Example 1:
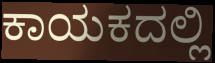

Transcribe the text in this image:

ಕಾಯಕದಲ್ಲಿ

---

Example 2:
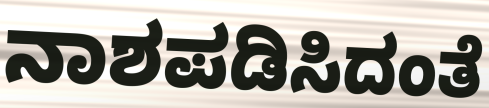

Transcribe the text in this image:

ನಾಶಪಡಿಸಿದಂತೆ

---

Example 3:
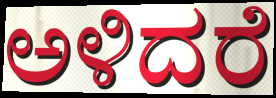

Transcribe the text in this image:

ಅಳಿದರೆ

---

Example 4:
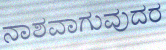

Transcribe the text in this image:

ನಾಶವಾಗುವುದರ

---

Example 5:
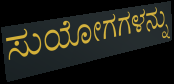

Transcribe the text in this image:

ಸುಯೋಗಗಳನ್ನು